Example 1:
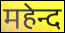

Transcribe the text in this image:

महेन्द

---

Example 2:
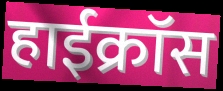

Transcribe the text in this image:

हाईक्रॉस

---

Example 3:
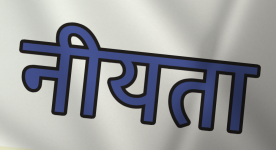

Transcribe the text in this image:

नीयता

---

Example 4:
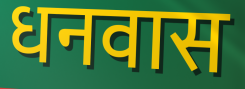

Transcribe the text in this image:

धनवास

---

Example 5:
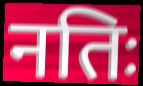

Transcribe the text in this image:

नतिः